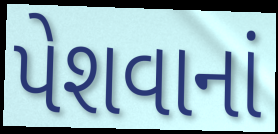
પેશવાનાં